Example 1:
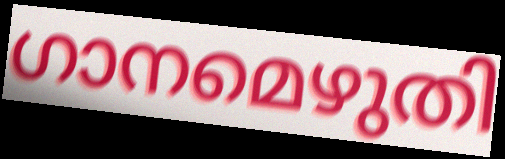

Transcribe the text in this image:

ഗാനമെഴുതി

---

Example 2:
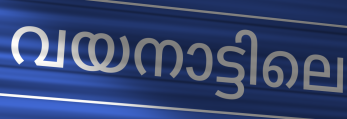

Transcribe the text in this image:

വയനാട്ടിലെ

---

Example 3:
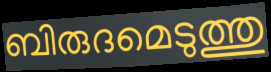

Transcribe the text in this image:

ബിരുദമെടുത്തു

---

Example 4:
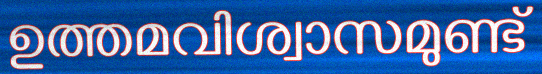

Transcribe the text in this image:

ഉത്തമവിശ്വാസമുണ്ട്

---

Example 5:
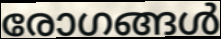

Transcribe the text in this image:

രോഗങ്ങൾ